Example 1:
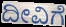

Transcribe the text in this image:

ದೀವಿಗೆ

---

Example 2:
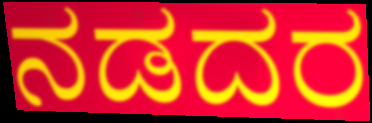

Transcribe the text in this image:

ನಡದರ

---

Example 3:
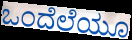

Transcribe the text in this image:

ಒಂದೆಲೆಯೂ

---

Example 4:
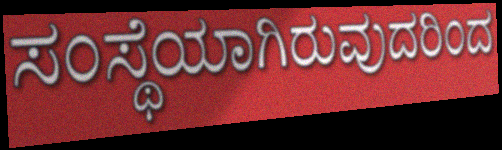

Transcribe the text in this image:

ಸಂಸ್ಥೆಯಾಗಿರುವುದರಿಂದ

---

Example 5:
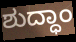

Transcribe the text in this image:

ಶುದ್ಧಾಂ